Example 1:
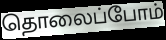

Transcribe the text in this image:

தொலைப்போம்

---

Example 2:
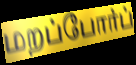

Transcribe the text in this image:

மறப்போர்ப்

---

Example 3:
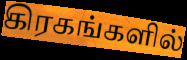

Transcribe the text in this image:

கிரகங்களில்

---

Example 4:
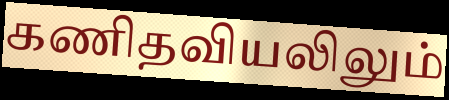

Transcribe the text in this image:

கணிதவியலிலும்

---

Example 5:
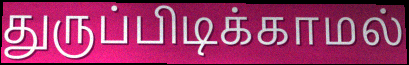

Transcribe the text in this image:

துருப்பிடிக்காமல்